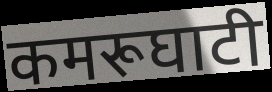
कमरूघाटी